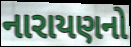
નારાયણનો